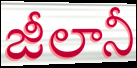
జీలానీ